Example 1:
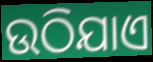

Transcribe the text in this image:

ଉଠିଯାଏ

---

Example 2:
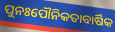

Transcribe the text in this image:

ପୁନଃପୌନିକତାବାର୍ଷିକ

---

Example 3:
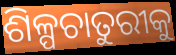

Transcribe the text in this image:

ଶିଳ୍ପଚାତୁରୀକୁ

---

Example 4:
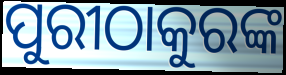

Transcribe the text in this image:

ପୁରୀଠାକୁରଙ୍କ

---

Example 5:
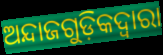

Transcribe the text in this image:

ଅନ୍ଦାଜଗୁଡ଼ିକଦ୍ୱାରା